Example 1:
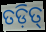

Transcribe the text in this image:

ତଡ଼ିତ୍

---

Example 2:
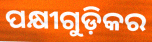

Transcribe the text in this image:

ପକ୍ଷୀଗୁଡ଼ିକର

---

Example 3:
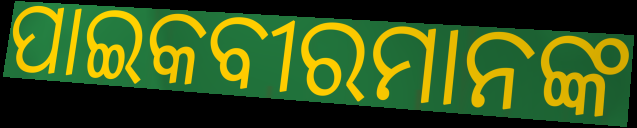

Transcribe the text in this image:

ପାଇକବୀରମାନଙ୍କ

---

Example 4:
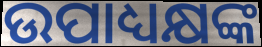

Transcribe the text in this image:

ଉପାଧ୍ୟକ୍ଷଙ୍କ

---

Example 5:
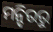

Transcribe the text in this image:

ମନ୍ଦିରରୁ